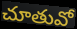
చూతువో